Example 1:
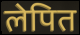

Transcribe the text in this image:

लेपित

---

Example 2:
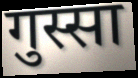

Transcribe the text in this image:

गुस्सा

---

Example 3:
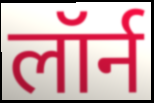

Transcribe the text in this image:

लॉर्न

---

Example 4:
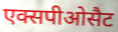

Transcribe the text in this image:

एक्सपीओसैट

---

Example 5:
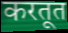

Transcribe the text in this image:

करतूत